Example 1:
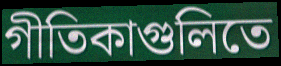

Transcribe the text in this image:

গীতিকাগুলিতে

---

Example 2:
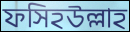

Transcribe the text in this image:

ফসিহউল্লাহ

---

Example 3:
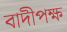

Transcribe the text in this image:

বাদীপক্ষ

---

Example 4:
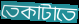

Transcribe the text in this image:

তেকাটাতে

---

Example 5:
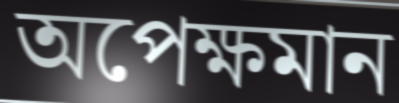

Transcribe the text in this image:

অপেক্ষমান